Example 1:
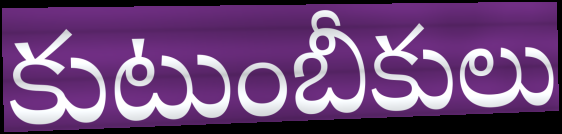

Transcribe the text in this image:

కుటుంబీకులు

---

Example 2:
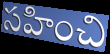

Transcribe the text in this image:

సహించి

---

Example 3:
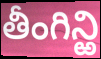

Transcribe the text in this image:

తీంగిన్ఱి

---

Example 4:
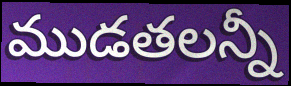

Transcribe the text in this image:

ముడతలన్నీ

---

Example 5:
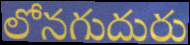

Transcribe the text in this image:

లోనగుదురు